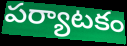
పర్యాటకం